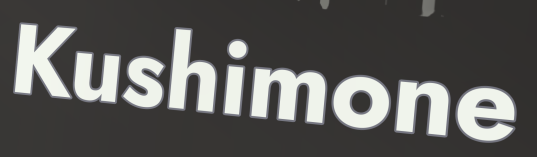
Kushimone